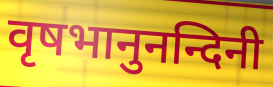
वृषभानुनन्दिनी